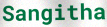
Sangitha